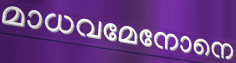
മാധവമേനോനെ